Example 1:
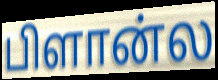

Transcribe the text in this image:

பிளான்ல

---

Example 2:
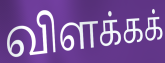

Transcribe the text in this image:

விளக்கக்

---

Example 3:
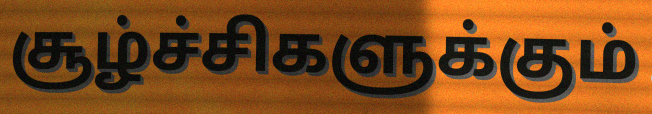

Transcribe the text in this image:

சூழ்ச்சிகளுக்கும்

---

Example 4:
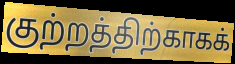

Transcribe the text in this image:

குற்றத்திற்காகக்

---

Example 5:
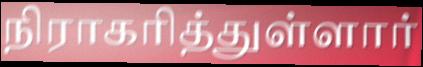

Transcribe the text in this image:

நிராகரித்துள்ளார்